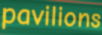
pavilions